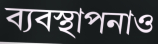
ব্যবস্থাপনাও